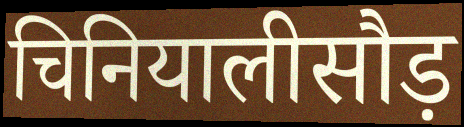
चिनियालीसौड़